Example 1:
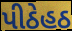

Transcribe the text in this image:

પીઠેહઠ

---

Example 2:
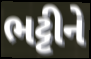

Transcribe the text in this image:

ભટ્ટીને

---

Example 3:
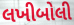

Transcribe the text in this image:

લખીબોલી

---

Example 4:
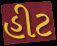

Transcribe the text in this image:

હીટ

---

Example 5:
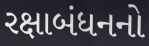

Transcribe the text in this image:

રક્ષાબંધનનો